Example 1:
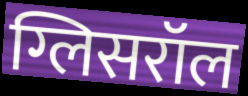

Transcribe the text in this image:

ग्लिसरॉल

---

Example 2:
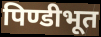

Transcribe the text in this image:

पिण्डीभूत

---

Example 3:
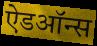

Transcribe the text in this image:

ऐडऑन्स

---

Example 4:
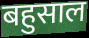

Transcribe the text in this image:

बहुसाल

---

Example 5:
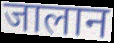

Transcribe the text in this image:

जालान